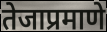
तेजाप्रमाणे